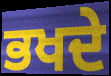
ਭਖਦੇ